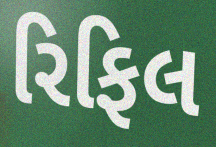
રિફિલ